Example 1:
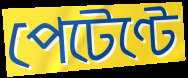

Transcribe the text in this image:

পেটেণ্টে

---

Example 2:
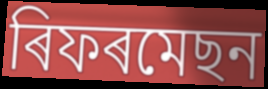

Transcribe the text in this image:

ৰিফৰমেছন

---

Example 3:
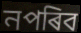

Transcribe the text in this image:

নপৰিব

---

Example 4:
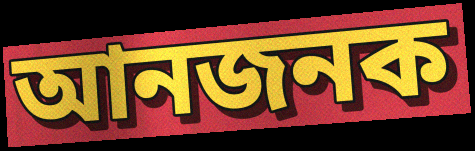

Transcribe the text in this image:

আনজনক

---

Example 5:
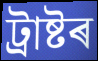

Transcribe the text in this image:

ট্ৰাষ্টৰ